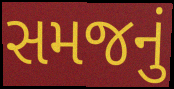
સમજનું